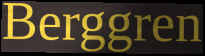
Berggren